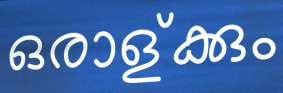
ഒരാള്ക്കും